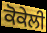
ਕੋਕੇਲੀ